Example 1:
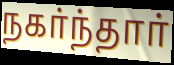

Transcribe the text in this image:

நகர்ந்தார்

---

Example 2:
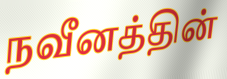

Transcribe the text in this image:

நவீனத்தின்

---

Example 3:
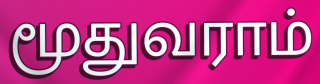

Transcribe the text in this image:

மூதுவராம்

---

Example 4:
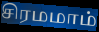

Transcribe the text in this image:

சிரமமாம்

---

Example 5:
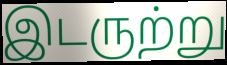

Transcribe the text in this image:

இடருற்று